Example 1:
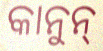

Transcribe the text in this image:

କାନୁନ୍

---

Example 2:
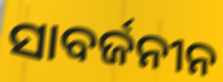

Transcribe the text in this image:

ସାବର୍ଜନୀନ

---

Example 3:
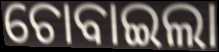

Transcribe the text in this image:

ଚୋବାଇଲା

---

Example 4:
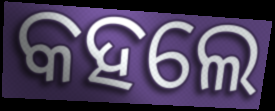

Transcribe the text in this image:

କହଲେ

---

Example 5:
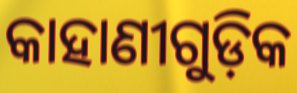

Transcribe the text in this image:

କାହାଣୀଗୁଡ଼ିକ